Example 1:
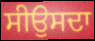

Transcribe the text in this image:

ਸੀਉਸਦਾ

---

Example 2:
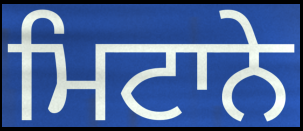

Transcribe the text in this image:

ਮਿਟਾਨੇ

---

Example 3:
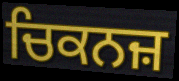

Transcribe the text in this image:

ਚਿਕਨਜ਼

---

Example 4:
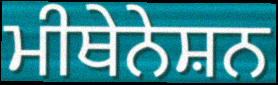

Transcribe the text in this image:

ਮੀਥੇਨੇਸ਼ਨ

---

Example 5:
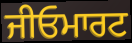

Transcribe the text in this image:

ਜੀਓਮਾਰਟ